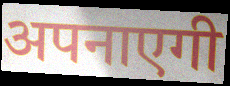
अपनाएगी